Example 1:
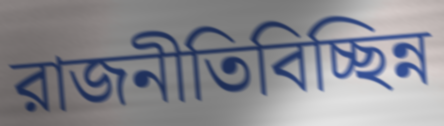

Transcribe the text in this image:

রাজনীতিবিচ্ছিন্ন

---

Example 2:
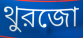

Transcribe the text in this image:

থুরজো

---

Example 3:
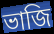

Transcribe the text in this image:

ভাজি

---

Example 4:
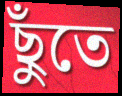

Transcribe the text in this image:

ছুঁতে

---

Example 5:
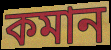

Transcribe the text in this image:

কমান